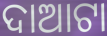
ଦାଆଟା